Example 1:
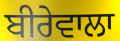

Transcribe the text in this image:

ਬੀਰੇਵਾਲਾ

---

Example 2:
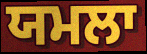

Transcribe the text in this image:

ਯਮਲਾ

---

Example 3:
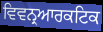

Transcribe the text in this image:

ਵਿਵਨ੍ਰਆਰਕਟਿਕ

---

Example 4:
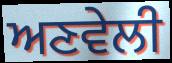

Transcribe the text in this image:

ਅਣਵੇਲੀ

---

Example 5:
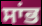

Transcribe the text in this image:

ਸਾਂਭ